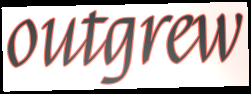
outgrew